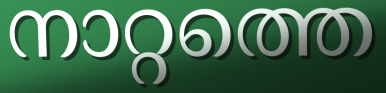
നാറ്റത്തെ